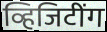
व्हिजिटींग